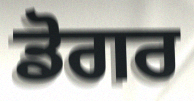
ਡੋਗਰ